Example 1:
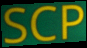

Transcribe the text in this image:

SCP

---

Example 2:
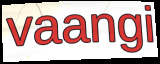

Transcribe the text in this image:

vaangi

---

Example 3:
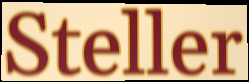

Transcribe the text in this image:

Steller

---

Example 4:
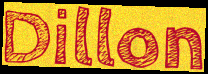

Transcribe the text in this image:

Dillon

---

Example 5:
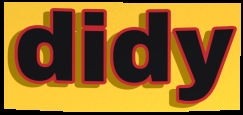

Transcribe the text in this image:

didy